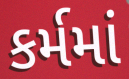
કર્મમાં